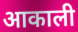
आकाली